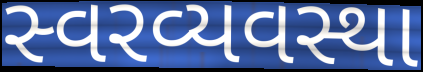
સ્વરવ્યવસ્થા